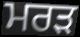
ਮਰੜ